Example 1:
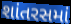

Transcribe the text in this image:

શાંતરસમાં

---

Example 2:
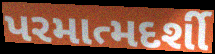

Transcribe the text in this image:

પરમાત્મદર્શી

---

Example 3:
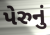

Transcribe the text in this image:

પેરુનું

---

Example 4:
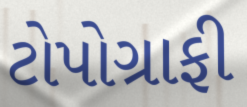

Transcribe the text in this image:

ટોપોગ્રાફી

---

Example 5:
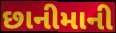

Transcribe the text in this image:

છાનીમાની